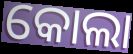
କୋଲା